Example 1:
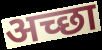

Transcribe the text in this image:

अच्‍छा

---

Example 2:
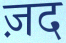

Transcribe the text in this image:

ज़द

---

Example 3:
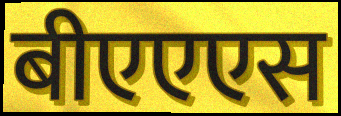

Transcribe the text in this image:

बीएएएस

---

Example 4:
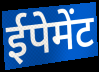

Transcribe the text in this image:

ईपेमेंट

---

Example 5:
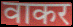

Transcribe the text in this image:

वाकर